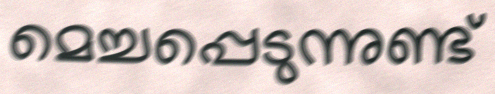
മെച്ചപ്പെടുന്നുണ്ട്